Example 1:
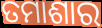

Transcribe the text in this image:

ତମାଶାର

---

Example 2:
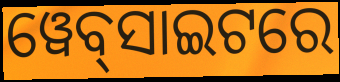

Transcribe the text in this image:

ୱେବ୍‍ସାଇଟରେ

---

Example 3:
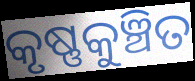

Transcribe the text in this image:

କୃଷ୍ଣକୁଞ୍ଚିତ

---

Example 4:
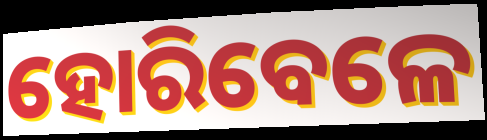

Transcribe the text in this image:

ହୋରିବେଳେ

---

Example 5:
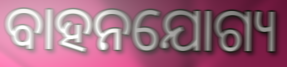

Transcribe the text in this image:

ବାହନଯୋଗ୍ୟ